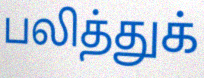
பலித்துக்